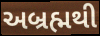
અબ્રહ્મથી